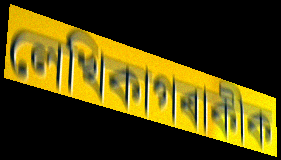
লেখিকাগৰাকীক